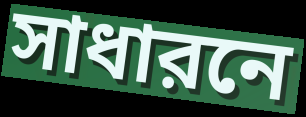
সাধারনে